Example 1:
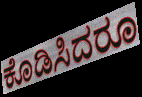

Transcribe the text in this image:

ಕೊಡಿಸಿದರೂ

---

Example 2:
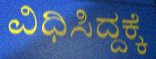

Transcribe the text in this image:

ವಿಧಿಸಿದ್ದಕ್ಕೆ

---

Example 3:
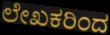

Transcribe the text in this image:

ಲೇಖಕರಿಂದ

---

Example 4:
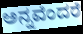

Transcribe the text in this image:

ಅನ್ನವೆಂದರೆ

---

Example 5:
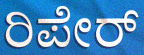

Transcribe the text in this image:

ರಿಪೇರ್